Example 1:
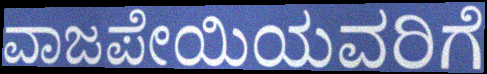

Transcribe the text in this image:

ವಾಜಪೇಯಿಯವರಿಗೆ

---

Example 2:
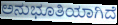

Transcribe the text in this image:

ಅನುಭೂತಿಯಾಗಿದೆ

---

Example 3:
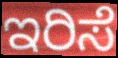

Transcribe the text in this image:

ಇರಿಸೆ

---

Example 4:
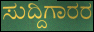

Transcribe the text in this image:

ಸುದ್ದಿಗಾರರ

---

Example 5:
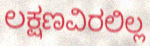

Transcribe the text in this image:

ಲಕ್ಷಣವಿರಲಿಲ್ಲ